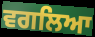
ਵਗਲਿਆ